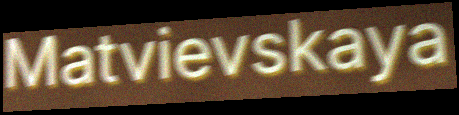
Matvievskaya